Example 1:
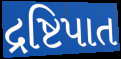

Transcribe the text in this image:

દ્રષ્ટિપાત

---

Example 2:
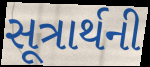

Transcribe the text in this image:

સૂત્રાર્થની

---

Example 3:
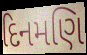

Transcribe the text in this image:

દિનમણિ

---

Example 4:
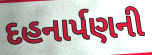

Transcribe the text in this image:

દહનાર્પણની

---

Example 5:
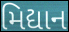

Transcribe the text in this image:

મિદ્યાન